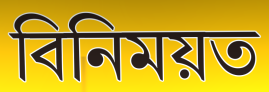
বিনিময়ত